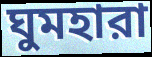
ঘুমহারা